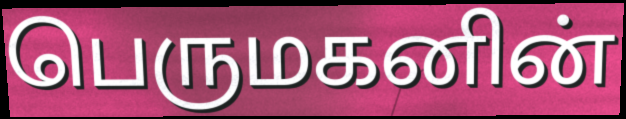
பெருமகனின்